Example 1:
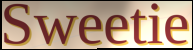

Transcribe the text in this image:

Sweetie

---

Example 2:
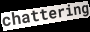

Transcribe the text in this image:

chattering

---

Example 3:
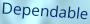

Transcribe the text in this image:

Dependable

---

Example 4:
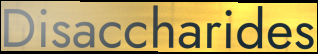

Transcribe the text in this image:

Disaccharides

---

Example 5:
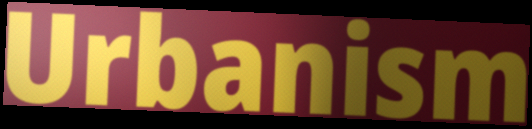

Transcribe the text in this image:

Urbanism